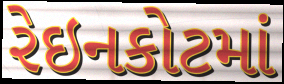
રેઇનકોટમાં